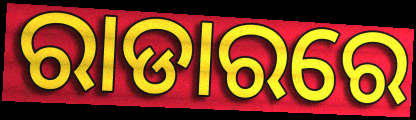
ରାଡାରରେ